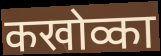
कखोव्का